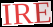
IRE